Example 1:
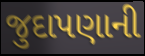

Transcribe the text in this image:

જુદાપણાની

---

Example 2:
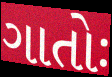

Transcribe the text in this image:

ગાતોઃ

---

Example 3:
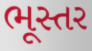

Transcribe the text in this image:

ભૂસ્તર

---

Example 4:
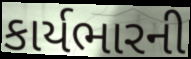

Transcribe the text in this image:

કાર્યભારની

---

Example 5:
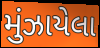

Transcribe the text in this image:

મુંઝાયેલા